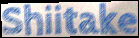
Shiitake